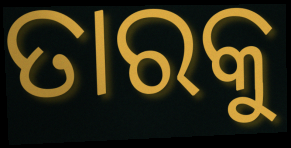
ତାରକୁ